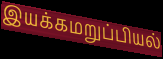
இயக்கமறுப்பியல்